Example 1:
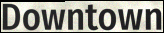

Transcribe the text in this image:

Downtown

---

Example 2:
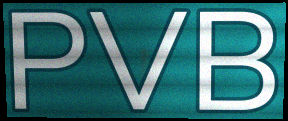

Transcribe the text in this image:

PVB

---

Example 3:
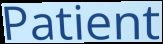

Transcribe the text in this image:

Patient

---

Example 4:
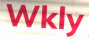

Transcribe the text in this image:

Wkly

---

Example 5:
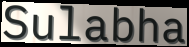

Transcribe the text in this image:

Sulabha